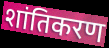
शांतिकरण